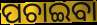
ପଚାଇବା